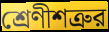
শ্রেণীশত্রুর